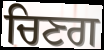
ਚਿਣਗ